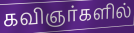
கவிஞர்களில்